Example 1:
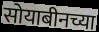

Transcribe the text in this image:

सोयाबीनच्या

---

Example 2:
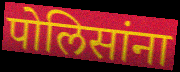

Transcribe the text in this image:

पोलिसांना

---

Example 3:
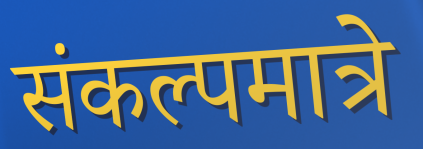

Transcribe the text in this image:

संकल्पमात्रे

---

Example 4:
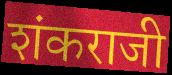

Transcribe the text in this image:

शंकराजी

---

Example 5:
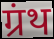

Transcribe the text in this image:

ग्रंथ